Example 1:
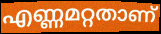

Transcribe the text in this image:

എണ്ണമറ്റതാണ്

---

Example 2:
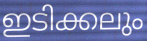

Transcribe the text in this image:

ഇടിക്കലും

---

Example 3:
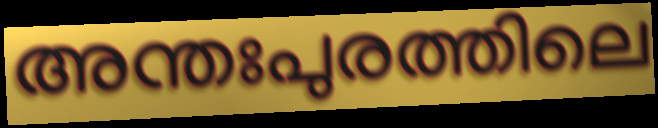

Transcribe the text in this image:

അന്തഃപുരത്തിലെ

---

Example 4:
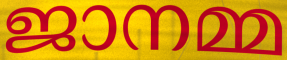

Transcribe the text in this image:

ജാനമ്മ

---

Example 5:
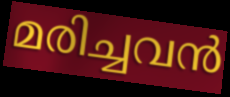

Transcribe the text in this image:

മരിച്ചവൻ